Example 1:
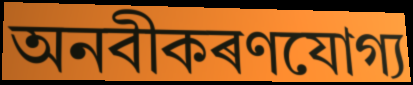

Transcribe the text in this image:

অনবীকৰণযোগ্য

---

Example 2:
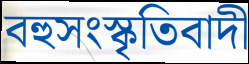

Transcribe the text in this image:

বহুসংস্কৃতিবাদী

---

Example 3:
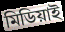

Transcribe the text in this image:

মিডিয়াই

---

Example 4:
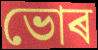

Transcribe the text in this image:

ভোৰ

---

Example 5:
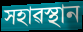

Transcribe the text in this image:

সহাৱস্থান